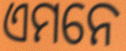
ଏମନେ